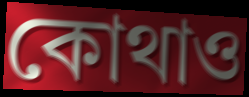
কোথাও